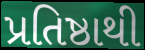
પ્રતિષ્ઠાથી